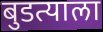
बुडत्याला